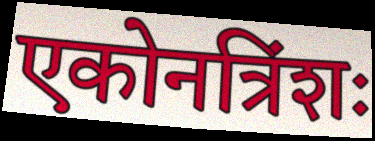
एकोनत्रिंशः